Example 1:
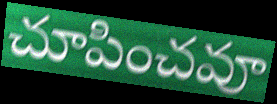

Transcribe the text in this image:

చూపించవూ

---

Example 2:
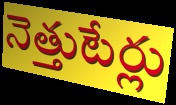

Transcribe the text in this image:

నెత్తుటేర్లు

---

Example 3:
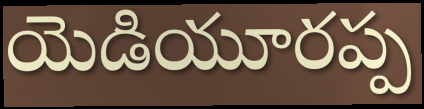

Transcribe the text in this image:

యెడియూరప్ప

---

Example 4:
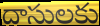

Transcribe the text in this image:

దాసులకు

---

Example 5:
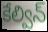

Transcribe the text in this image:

కేల్విన్